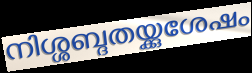
നിശ്ശബ്ദതയ്ക്കുശേഷം